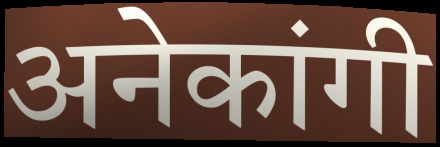
अनेकांगी